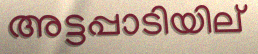
അട്ടപ്പാടിയില്